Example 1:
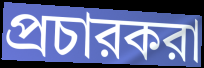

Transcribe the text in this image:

প্রচারকরা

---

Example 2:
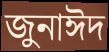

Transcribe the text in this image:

জুনাঈদ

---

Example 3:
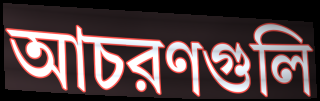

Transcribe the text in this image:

আচরণগুলি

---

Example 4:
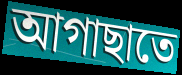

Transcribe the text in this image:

আগাছাতে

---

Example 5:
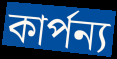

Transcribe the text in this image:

কার্পন্য